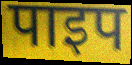
पाइप